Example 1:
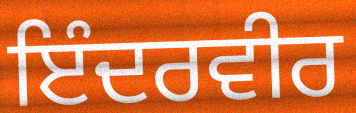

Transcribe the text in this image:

ਇੰਦਰਵੀਰ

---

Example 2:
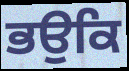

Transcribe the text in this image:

ਭਉਕਿ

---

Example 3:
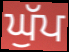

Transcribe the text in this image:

ਘੁੱਪ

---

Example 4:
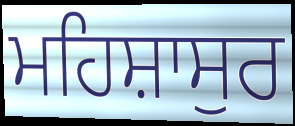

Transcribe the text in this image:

ਮਹਿਸ਼ਾਸੁਰ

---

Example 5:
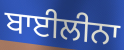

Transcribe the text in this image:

ਬਾਈਲੀਨਾ